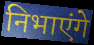
निभाएंगे